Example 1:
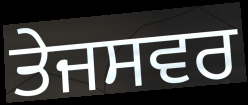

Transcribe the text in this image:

ਤੇਜਸਵਰ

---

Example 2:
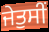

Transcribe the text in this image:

ਜੇਤੁਸੀਂ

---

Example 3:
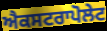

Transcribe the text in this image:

ਐਕਸਟਰਾਪੋਲੇਟ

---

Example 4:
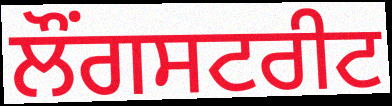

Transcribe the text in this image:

ਲੌਂਗਸਟਰੀਟ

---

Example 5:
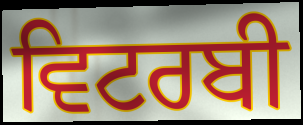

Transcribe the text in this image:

ਵਿਟਰਬੀ